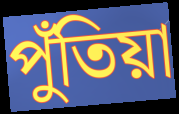
পুঁতিয়া